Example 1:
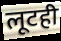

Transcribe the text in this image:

लूटही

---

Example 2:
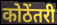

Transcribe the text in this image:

कोठेंतरी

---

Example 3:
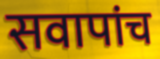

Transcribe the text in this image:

सवापांच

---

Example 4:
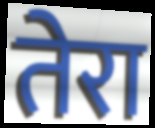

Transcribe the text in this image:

तेरा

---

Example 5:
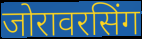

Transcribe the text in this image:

जोरावरसिंग